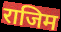
राजिम